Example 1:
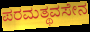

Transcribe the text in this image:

ಪರಮತ್ಥವಸೇನ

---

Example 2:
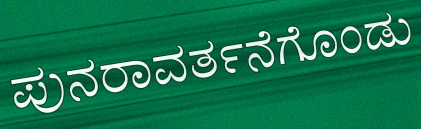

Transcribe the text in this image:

ಪುನರಾವರ್ತನೆಗೊಂಡು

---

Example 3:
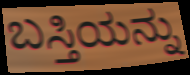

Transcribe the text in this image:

ಬಸ್ತಿಯನ್ನು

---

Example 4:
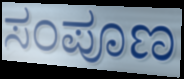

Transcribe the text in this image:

ಸಂಪೂಣ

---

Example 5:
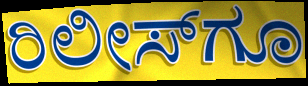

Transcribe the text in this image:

ರಿಲೀಸ್‌ಗೂ